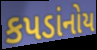
કપડાંનોય